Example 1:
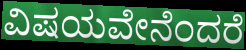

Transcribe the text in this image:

ವಿಷಯವೇನೆಂದರೆ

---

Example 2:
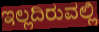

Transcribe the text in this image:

ಇಲ್ಲದಿರುವಲ್ಲಿ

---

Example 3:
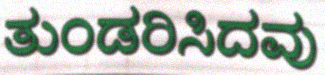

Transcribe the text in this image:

ತುಂಡರಿಸಿದವು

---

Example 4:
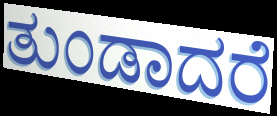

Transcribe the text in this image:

ತುಂಡಾದರೆ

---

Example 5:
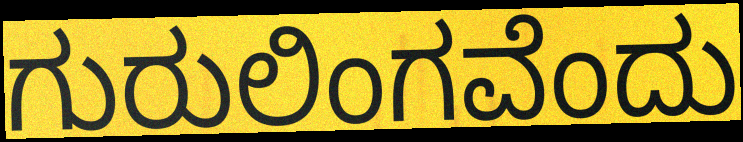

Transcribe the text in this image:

ಗುರುಲಿಂಗವೆಂದು